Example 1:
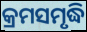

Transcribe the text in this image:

କ୍ରମସମୃଦ୍ଧି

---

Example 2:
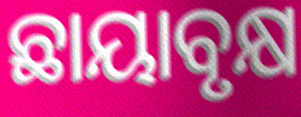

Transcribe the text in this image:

ଛାୟାବୃକ୍ଷ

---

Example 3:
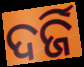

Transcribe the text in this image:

ଦର୍ଜି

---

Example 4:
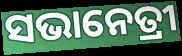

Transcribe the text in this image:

ସଭାନେତ୍ରୀ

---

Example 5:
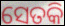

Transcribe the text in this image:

ସେତକି